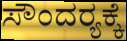
ಸೌಂದರ‍್ಯಕ್ಕೆ